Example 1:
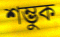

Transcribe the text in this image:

শম্ভুক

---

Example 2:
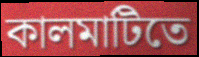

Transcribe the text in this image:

কালমাটিতে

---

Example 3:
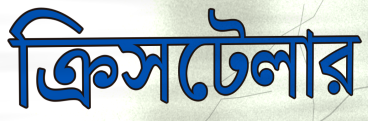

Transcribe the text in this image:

ক্রিসটেলার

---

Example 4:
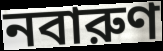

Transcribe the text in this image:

নবারুণ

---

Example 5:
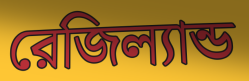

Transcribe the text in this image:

রেজিল্যান্ড